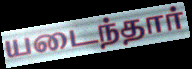
யடைந்தார்